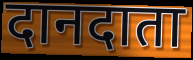
दानदाता